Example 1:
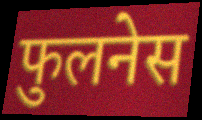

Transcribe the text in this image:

फुलनेस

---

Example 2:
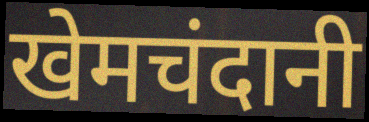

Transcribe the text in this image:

खेमचंदानी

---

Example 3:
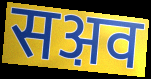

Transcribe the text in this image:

सअ़व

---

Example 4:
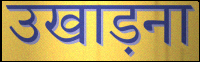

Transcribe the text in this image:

उखाड़ना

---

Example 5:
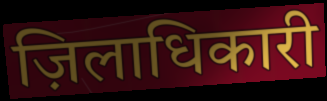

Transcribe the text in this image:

ज़िलाधिकारी